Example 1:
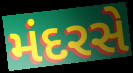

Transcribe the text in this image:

મંદરસે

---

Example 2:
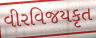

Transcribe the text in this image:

વીરવિજયકૃત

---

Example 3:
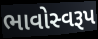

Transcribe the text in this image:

ભાવોસ્વરૂપ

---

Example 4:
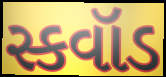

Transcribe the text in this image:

સ્કવૉડ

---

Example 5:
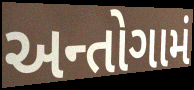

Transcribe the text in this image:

અન્તોગામં